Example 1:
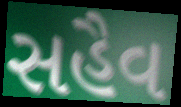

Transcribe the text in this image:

સહૈવ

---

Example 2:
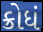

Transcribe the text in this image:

ક્રોધં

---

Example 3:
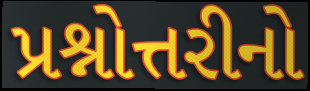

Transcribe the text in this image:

પ્રશ્નોત્તરીનો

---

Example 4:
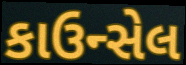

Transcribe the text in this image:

કાઉન્સેલ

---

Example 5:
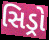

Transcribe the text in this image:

સિડ્રો